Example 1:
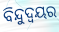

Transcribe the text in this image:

ବିନ୍ଦୁଦ୍ବୟର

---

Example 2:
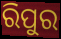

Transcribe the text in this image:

ରିପୁର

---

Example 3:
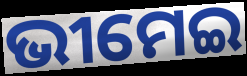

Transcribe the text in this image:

ଭୀମେଇ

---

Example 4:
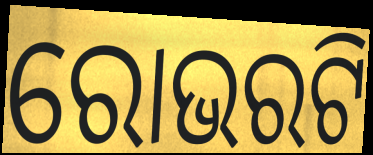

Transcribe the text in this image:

ରୋଭରଟି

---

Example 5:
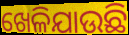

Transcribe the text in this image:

ଖେଳିଯାଉଛି